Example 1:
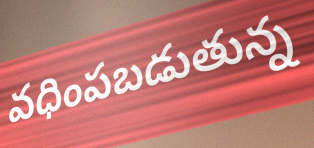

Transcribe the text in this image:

వధింపబడుతున్న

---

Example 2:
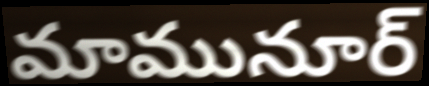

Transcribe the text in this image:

మామునూర్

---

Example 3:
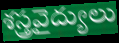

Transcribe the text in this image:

శస్త్రవైద్యులు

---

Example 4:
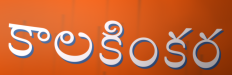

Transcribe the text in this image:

కాలకింకర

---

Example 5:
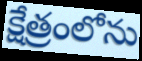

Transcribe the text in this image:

క్షేత్రంలోను